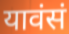
यावंसं